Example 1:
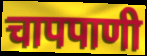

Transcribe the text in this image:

चापपाणी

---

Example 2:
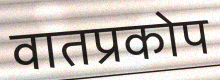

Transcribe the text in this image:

वातप्रकोप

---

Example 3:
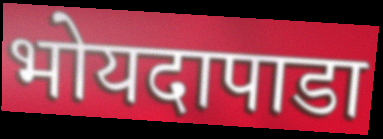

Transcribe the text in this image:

भोयदापाडा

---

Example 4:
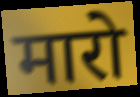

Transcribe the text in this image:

मारो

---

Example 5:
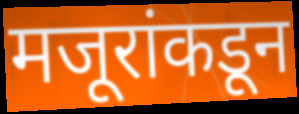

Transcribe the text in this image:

मजूरांकडून